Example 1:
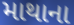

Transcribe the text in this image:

માથાના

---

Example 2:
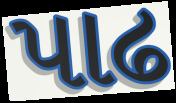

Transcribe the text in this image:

પાઢ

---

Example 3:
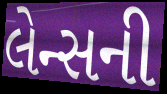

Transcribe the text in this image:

લેન્સની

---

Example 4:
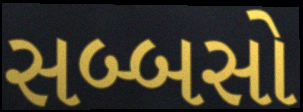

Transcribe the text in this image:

સબ્બસો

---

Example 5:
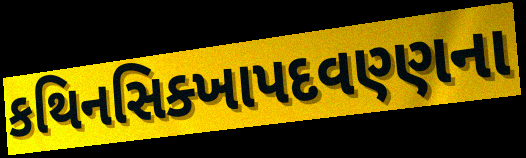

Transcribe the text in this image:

કથિનસિક્ખાપદવણ્ણના